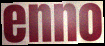
enno